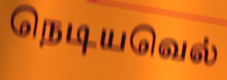
நெடியவெல்